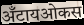
अँटायओकस